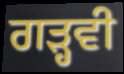
ਗੜ੍ਹਵੀ